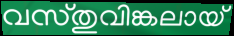
വസ്തുവിങ്കലായ്